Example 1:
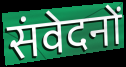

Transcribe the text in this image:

संवेदनों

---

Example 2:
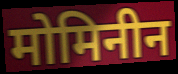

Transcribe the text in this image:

मोमिनीन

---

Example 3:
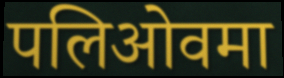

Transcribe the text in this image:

पलिओवमा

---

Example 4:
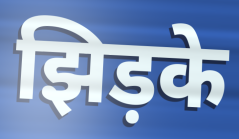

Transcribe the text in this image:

झिड़के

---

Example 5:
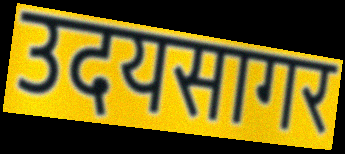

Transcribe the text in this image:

उदयसागर